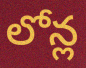
లోన్ల